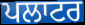
ਪਲਾਟਰ